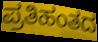
ಪ್ರತಿಹಂತದ